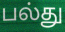
பல்து